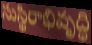
సుస్థిరాభివృద్ధి